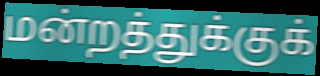
மன்றத்துக்குக்